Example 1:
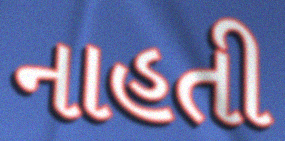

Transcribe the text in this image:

નાહતી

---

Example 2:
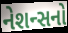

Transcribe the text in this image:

નેશન્સનો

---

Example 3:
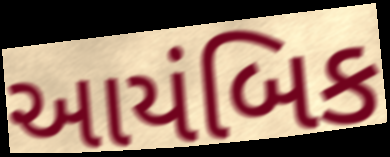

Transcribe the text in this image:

આયંબિક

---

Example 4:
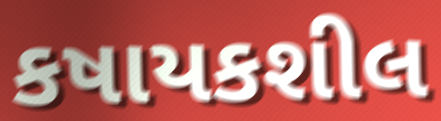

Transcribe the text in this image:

કષાયકશીલ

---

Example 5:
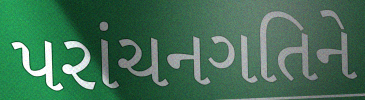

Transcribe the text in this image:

પરાંચનગતિને